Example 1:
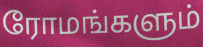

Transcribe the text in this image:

ரோமங்களும்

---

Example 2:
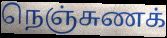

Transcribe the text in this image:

நெஞ்சுணக்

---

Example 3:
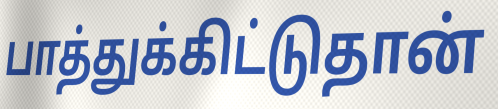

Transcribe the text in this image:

பாத்துக்கிட்டுதான்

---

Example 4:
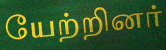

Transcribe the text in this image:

யேற்றினர்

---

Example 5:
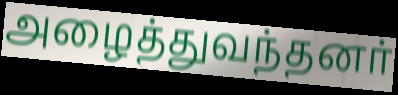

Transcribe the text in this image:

அழைத்துவந்தனர்